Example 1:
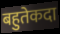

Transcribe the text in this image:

बहुतेकदा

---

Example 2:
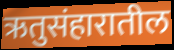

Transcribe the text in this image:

ऋतुसंहारातील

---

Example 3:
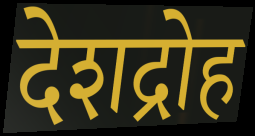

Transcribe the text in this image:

देशद्रोह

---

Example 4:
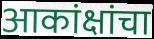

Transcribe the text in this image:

आकांक्षांचा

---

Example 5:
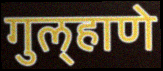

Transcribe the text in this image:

गुल्हाणे